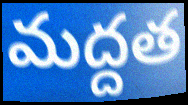
మద్దత